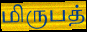
மிருபத்